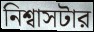
নিশ্বাসটার